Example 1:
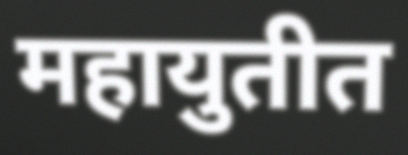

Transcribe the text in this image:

महायुतीत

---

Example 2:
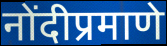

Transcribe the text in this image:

नोंदीप्रमाणे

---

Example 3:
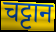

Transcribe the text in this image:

चट्टान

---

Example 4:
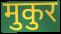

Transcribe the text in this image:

मुकुर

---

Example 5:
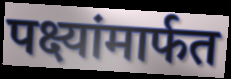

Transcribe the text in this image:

पक्ष्यांमार्फत